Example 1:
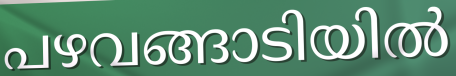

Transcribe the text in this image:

പഴവങ്ങാടിയിൽ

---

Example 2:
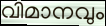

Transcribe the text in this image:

വിമാനവും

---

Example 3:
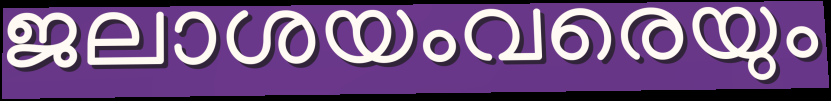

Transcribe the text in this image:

ജലാശയംവരെയും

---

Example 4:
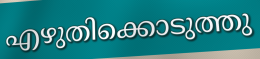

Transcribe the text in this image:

എഴുതിക്കൊടുത്തു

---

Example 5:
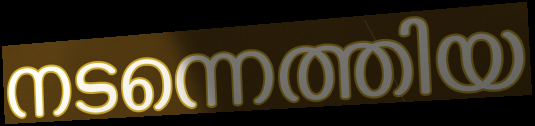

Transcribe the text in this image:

നടന്നെത്തിയ